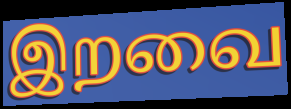
இறவை